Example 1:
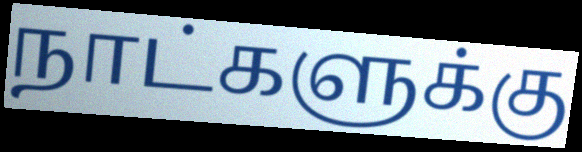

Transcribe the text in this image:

நாட்களுக்கு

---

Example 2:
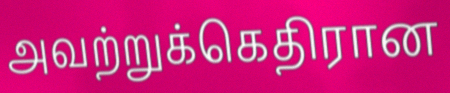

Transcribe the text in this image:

அவற்றுக்கெதிரான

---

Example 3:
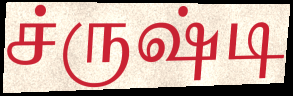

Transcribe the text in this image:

ச்ருஷ்டி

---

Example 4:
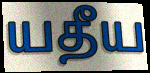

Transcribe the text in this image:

யதீய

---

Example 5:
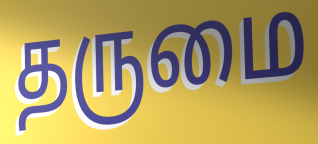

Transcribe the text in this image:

தருமை